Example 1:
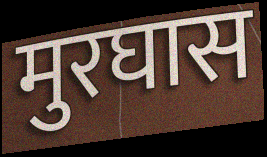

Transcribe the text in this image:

मुरघास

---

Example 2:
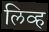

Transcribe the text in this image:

लिव्ह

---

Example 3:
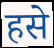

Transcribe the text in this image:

हसे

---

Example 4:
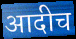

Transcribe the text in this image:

आदीच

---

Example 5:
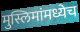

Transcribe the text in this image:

मुस्लिमांमध्येच